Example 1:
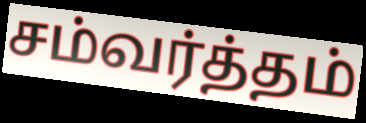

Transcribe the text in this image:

சம்வர்த்தம்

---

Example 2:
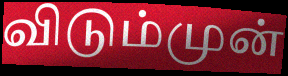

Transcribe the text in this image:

விடும்முன்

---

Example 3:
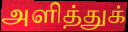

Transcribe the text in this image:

அளித்துக்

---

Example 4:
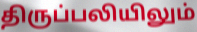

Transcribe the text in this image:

திருப்பலியிலும்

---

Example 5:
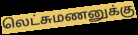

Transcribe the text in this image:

லெட்சுமணனுக்கு